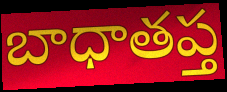
బాధాతప్త